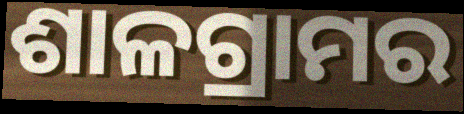
ଶାଳଗ୍ରାମର